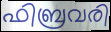
ഫിബ്രവരി